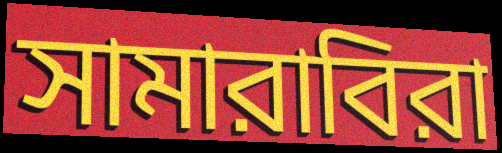
সামারাবিরা